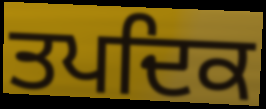
ਤਪਦਿਕ